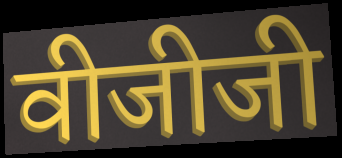
वीजीजी